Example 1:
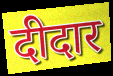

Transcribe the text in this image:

दीदार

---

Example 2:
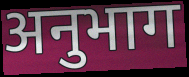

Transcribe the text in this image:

अनुभाग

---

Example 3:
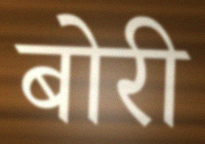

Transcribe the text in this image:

बोरी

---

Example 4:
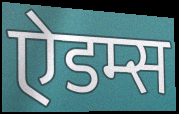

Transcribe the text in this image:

ऐडम्स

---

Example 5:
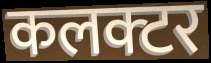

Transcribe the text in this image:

कलक्‍टर